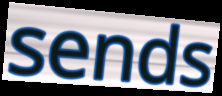
sends